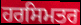
ਹਰਸਿਮਤਰ